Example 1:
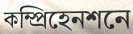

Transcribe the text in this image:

কম্প্রিহেনশনে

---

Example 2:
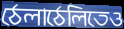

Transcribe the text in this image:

ঠেলাঠেলিতেও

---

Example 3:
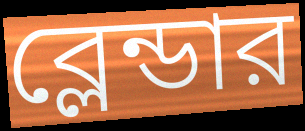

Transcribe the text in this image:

ব্লেন্ডার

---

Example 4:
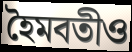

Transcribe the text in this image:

হৈমবতীও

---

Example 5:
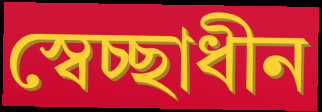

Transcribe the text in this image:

স্বেচ্ছাধীন